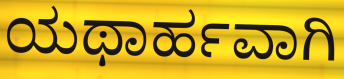
ಯಥಾರ್ಹವಾಗಿ